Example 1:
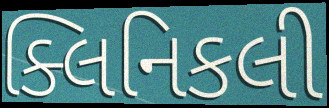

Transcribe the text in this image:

ક્લિનિકલી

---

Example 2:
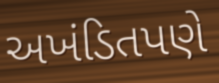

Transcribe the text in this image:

અખંડિતપણે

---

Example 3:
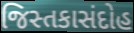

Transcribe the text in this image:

જિસ્તકાસંદોહ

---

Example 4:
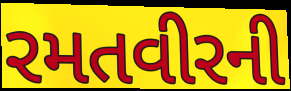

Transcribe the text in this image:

રમતવીરની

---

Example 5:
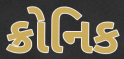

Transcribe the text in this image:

ક્રોનિક